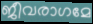
ജീവരാഗമേ